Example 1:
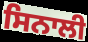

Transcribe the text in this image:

ਸਿਨਾਲੀ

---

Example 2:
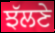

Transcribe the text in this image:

ਝੱਲਣੇ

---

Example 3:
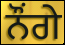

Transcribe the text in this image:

ਨੌਂਗੇ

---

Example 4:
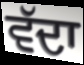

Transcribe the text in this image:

ਵੱਦਾ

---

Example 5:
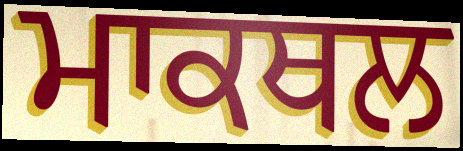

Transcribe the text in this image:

ਮਾਕਥਲ